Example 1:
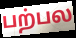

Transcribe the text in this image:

பற்பல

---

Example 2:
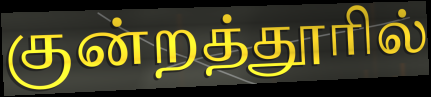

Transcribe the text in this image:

குன்றத்தூரில்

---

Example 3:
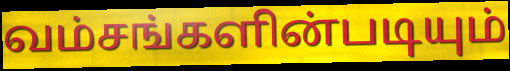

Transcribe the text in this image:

வம்சங்களின்படியும்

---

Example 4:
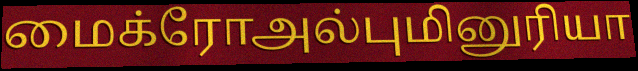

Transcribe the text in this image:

மைக்ரோஅல்புமினுரியா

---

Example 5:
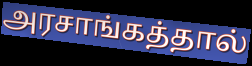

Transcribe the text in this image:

அரசாங்கத்தால்